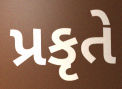
પ્રકૃતે